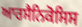
ਆਰਸੈਨਿਕੋਸਿਸ